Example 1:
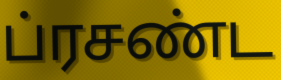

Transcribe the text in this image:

ப்ரசண்ட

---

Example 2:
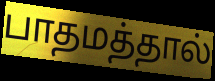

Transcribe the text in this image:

பாதமத்தால்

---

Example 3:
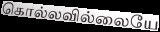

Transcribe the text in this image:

கொல்லவில்லையே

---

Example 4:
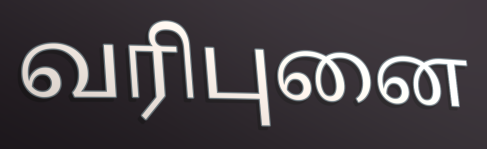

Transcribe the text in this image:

வரிபுனை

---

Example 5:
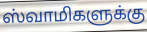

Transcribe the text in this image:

ஸ்வாமிகளுக்கு